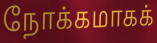
நோக்கமாகக்